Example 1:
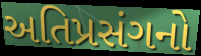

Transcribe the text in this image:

અતિપ્રસંગનો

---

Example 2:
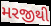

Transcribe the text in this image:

મરજીથી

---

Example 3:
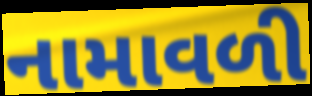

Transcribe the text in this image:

નામાવળી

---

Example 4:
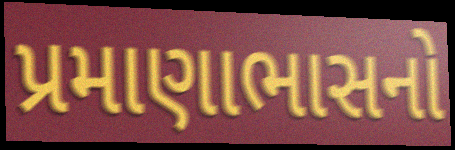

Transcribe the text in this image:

પ્રમાણાભાસનો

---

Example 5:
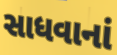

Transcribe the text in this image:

સાધવાનાં